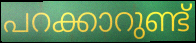
പറക്കാറുണ്ട്